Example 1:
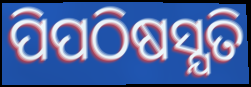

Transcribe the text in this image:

ପିପଠିଷସ୍ଯତି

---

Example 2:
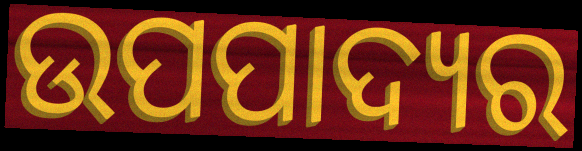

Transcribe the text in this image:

ଉପପାଦ୍ୟର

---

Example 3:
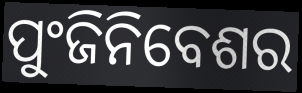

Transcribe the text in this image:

ପୁଂଜିନିବେଶର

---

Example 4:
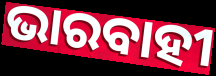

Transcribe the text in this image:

ଭାରବାହୀ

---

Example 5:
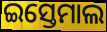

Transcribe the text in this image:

ଇସ୍ତେମାଲ